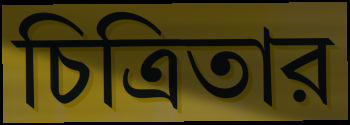
চিত্রিতার